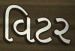
વિટર